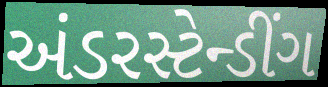
અંડરસ્ટેન્ડીંગ